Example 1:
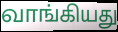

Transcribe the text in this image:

வாங்கியது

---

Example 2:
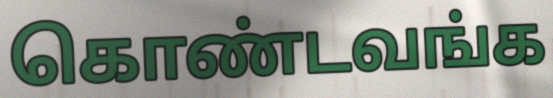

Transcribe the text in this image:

கொண்டவங்க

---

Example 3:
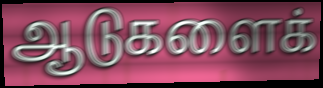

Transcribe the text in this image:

ஆடுகளைக்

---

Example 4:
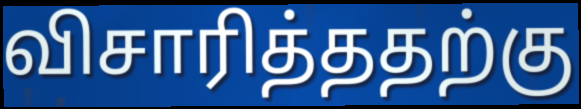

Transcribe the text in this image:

விசாரித்ததற்கு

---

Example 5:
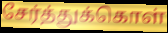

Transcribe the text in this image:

சேர்த்துக்கொள்